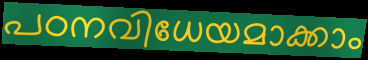
പഠനവിധേയമാക്കാം